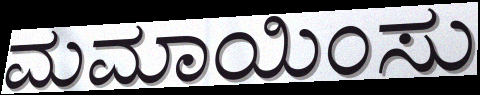
ಮಮಾಯಿಂಸು